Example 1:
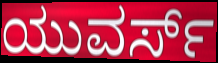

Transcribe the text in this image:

ಯುವರ್ಸ್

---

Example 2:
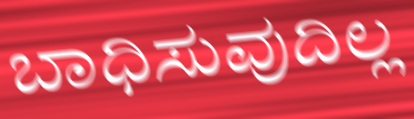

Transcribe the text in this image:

ಬಾಧಿಸುವುದಿಲ್ಲ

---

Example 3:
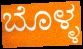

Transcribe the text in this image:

ಬೊಳ್ಳ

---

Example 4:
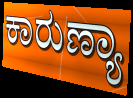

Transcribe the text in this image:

ಕಾರುಣ್ಯಾ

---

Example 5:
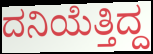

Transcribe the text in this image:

ದನಿಯೆತ್ತಿದ್ದ